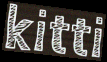
kitti